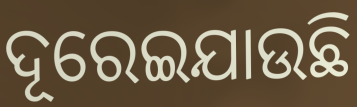
ଦୂରେଇଯାଉଛି